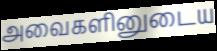
அவைகளினுடைய